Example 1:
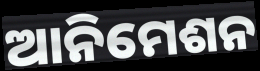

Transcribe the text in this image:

ଆନିମେଶନ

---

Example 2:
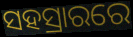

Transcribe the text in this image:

ସହସ୍ରାରରେ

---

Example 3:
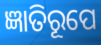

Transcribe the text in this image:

ଜ୍ଞାତିରୂପେ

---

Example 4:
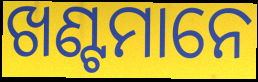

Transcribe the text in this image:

ଖଣ୍ଟମାନେ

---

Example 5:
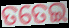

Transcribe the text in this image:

ତତେଇ